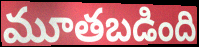
మూతబడింది